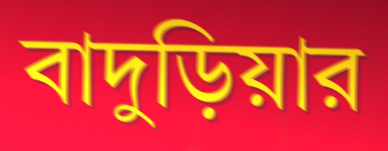
বাদুড়িয়ার